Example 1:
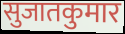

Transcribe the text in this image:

सुजातकुमार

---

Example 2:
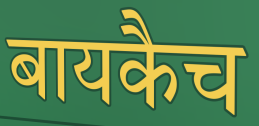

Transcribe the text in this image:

बायकैच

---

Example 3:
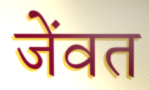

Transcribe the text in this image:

जेंवत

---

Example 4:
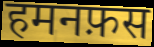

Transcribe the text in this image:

हमनफ़स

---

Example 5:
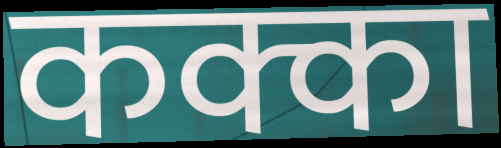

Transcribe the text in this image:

कक्का